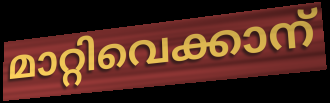
മാറ്റിവെക്കാന്